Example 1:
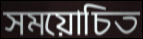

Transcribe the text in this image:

সময়োচিত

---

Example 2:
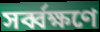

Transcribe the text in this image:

সর্ব্বক্ষণে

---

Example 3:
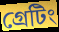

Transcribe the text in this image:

গ্রেটিং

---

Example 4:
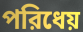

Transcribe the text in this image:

পরিধেয়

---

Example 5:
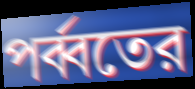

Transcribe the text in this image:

পর্ব্বতের